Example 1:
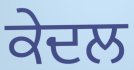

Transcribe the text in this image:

ਕੇਦਲ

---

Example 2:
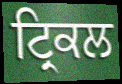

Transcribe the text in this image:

ਟ੍ਰਿਕਲ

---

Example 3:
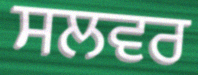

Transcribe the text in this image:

ਸਲਵਰ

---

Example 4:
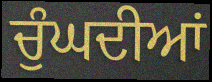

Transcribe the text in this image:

ਚੁੰਘਦੀਆਂ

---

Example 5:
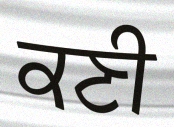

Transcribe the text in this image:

ਕਣੀ